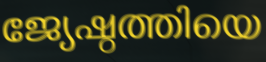
ജ്യേഷ്ഠത്തിയെ